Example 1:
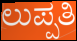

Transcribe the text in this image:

ಲುಪ್ಪತಿ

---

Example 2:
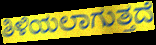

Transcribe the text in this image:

ತಿಳಿಯಲಾಗುತ್ತದೆ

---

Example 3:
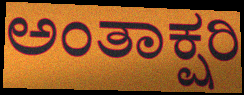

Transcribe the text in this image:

ಅಂತಾಕ್ಷರಿ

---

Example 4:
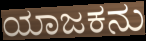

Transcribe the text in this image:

ಯಾಜಕನು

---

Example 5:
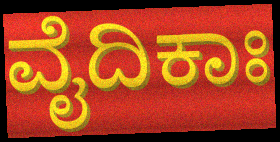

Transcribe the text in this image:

ವೈದಿಕಾಃ